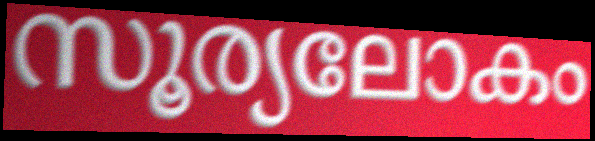
സൂര്യലോകം